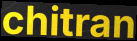
chitran